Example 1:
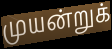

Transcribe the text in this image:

முயன்றுக்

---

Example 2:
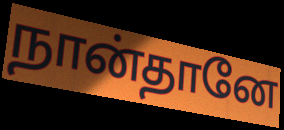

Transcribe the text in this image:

நான்தானே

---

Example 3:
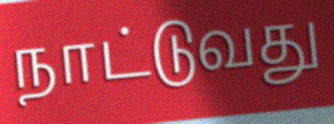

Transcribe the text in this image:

நாட்டுவது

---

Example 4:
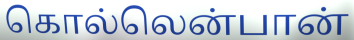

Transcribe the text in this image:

கொல்லென்பான்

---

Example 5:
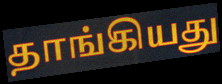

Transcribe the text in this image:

தாங்கியது